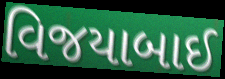
વિજયાબાઈ